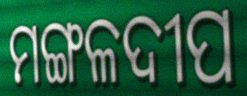
ମଙ୍ଗଳଦୀପ